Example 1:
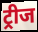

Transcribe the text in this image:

ट्रीज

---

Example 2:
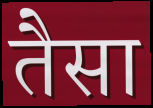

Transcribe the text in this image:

तैसा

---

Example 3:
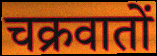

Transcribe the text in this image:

चक्रवातों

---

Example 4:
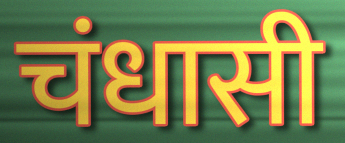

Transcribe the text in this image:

चंधासी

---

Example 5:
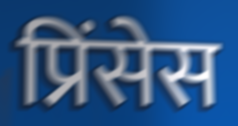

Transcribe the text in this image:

प्रिंसेस